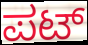
ಪಟ್